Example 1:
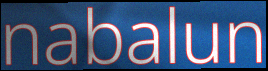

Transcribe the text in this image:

nabalun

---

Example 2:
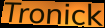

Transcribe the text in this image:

Tronick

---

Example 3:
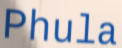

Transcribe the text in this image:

Phula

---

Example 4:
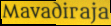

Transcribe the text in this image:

Mavadiraja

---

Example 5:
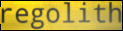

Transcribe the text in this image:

regolith